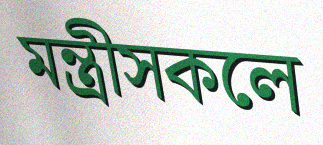
মন্ত্ৰীসকলে